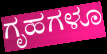
ಗೃಹಗಳೂ